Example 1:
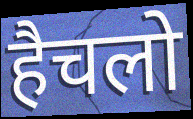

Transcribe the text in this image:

हैचलो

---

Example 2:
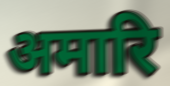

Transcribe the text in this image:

अमारि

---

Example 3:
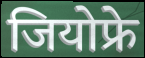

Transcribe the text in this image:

जियोफ्रे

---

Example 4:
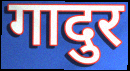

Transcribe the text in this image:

गादुर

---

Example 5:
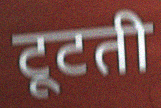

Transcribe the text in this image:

टूटती